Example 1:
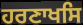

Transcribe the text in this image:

ਹਰਣਾਖਸਿ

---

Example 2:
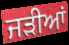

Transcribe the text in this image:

ਜੜੀਆਂ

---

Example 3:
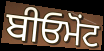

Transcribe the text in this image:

ਬੀਓਮੋਂਟ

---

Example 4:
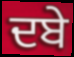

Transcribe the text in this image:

ਦਬੇ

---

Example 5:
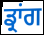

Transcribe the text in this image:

ਡ੍ਰਾਂਗ